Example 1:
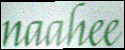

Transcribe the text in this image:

naahee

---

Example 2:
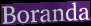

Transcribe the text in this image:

Boranda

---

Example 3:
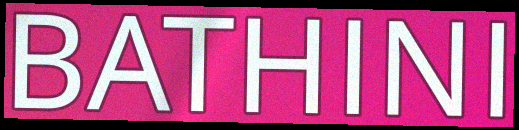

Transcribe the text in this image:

BATHINI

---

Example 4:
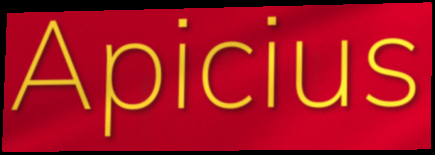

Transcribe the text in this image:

Apicius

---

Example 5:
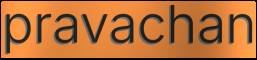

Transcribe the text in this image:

pravachan